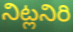
నిట్లనిరి